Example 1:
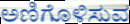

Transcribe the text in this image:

ಅಣಿಗೊಳಿಸುವ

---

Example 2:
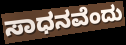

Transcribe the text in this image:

ಸಾಧನವೆಂದು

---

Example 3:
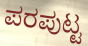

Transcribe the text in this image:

ಪರಪುಟ್ಟ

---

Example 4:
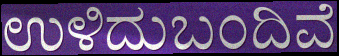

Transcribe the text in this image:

ಉಳಿದುಬಂದಿವೆ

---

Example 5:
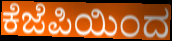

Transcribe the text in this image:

ಕೆಜೆಪಿಯಿಂದ